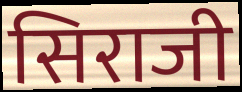
सिराजी